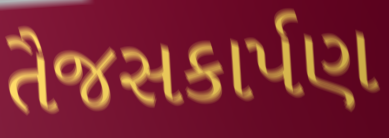
તૈજસકાર્પણ